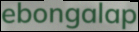
ebongalap